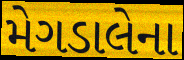
મેગડાલેના